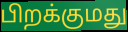
பிறக்குமது